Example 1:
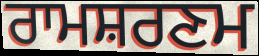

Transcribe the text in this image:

ਰਾਮਸ਼ਰਣਮ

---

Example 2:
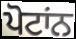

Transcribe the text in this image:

ਪੋਟਾਂਨ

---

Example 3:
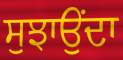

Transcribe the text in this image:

ਸੁਝਾਉਂਦਾ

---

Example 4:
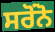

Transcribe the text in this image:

ਸਰੋਂਨੋ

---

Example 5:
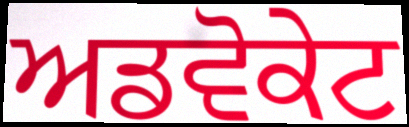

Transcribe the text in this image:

ਅਡਵੋਕੇਟ